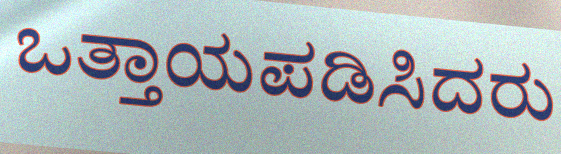
ಒತ್ತಾಯಪಡಿಸಿದರು